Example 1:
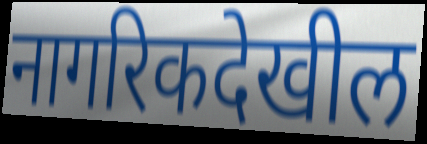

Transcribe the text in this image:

नागरिकदेखील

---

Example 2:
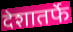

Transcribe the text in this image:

देशातर्फे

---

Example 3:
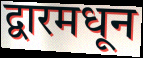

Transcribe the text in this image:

द्वारमधून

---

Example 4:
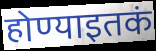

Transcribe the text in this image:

होण्याइतकं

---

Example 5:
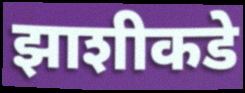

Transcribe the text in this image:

झाशीकडे